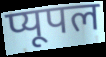
प्यूपल